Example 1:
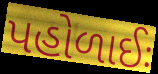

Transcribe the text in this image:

પહોળાઈઃ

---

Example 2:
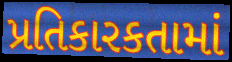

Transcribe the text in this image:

પ્રતિકારકતામાં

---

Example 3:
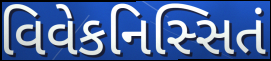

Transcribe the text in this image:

વિવેકનિસ્સિતં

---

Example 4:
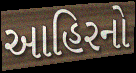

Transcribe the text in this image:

આહિરનો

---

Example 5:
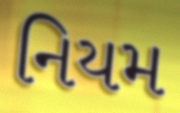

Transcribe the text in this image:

નિયમ